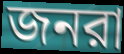
জনরা